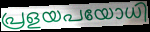
പ്രളയപയോധി